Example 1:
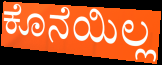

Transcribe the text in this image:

ಕೊನೆಯಿಲ್ಲ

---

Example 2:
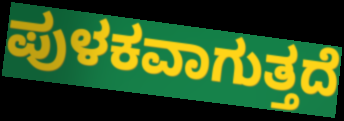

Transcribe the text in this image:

ಪುಳಕವಾಗುತ್ತದೆ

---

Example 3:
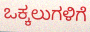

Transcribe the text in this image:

ಒಕ್ಕಲುಗಳಿಗೆ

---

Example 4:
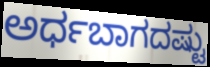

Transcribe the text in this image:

ಅರ್ಧಬಾಗದಷ್ಟು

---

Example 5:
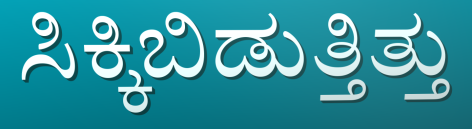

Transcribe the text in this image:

ಸಿಕ್ಕಿಬಿಡುತ್ತಿತ್ತು